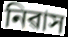
নিৱাস